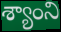
శ్యాంని